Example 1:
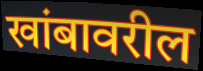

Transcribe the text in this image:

खांबावरील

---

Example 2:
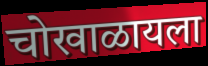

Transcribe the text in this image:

चोखाळायला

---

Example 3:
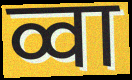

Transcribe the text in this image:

व्वा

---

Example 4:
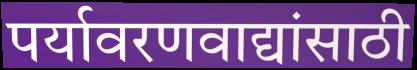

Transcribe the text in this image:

पर्यावरणवाद्यांसाठी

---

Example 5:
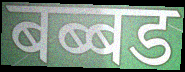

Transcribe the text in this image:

बब्बड